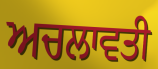
ਅਚਲਾਵਤੀ